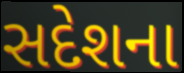
સદેશના